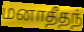
மனாதீதந்